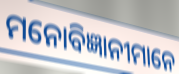
ମନୋବିଜ୍ଞାନୀମାନେ